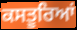
ਕਸਤੂਰਿਆਂ